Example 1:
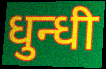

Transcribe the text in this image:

धुन्धी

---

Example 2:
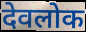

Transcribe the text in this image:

देवलोक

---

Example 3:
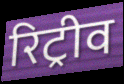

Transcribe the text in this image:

रिट्रीव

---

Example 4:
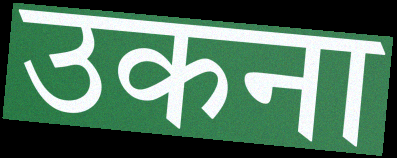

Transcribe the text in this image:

उकना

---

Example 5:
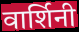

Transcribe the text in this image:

वार्शिनी